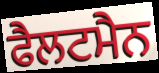
ਫੈਲਟਮੈਨ